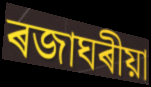
ৰজাঘৰীয়া